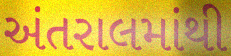
અંતરાલમાંથી